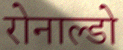
रोनाल्डो